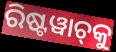
ରିଷ୍ଟୱାଚ୍‌କୁ